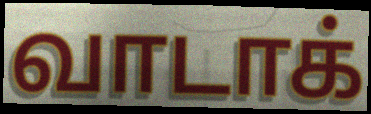
வாடாக்